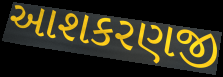
આશકરણજી